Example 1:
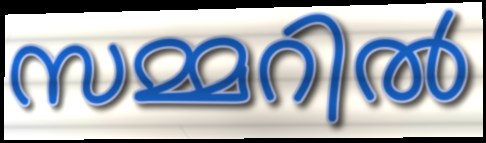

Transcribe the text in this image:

സമ്മറിൽ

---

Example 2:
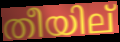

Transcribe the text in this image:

തീയില്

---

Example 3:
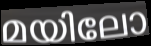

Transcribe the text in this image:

മയിലോ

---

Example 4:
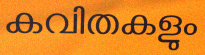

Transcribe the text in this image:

കവിതകളും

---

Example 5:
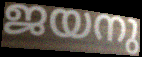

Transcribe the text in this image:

ജയനു